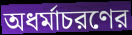
অধর্মাচরণের